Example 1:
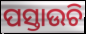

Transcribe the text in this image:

ପସ୍ତାଉଚି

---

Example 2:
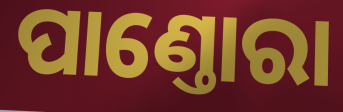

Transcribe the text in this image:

ପାଣ୍ତୋରା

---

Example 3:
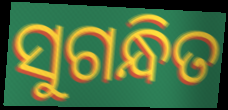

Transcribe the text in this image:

ସୁଗନ୍ଧିତ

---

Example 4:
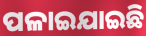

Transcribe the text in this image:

ପଳାଇଯାଇଛି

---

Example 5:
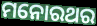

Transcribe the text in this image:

ମନୋରଥର